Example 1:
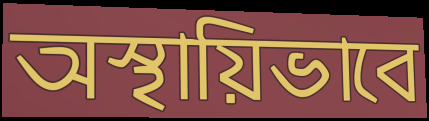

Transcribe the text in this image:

অস্থায়িভাবে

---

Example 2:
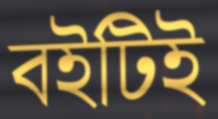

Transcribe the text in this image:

বইটিই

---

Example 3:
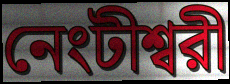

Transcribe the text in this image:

নেংটীশ্বরী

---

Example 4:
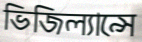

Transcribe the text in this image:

ভিজিল্যান্সে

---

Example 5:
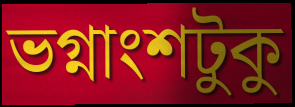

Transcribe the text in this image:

ভগ্নাংশটুকু